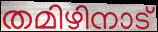
തമിഴിനാട്